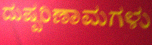
ದುಷ್ಪರಿಣಾಮಗಳು